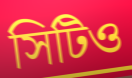
সিটিও